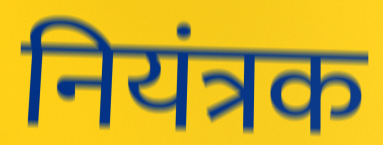
नियंत्रक